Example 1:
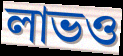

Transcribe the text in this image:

লাভও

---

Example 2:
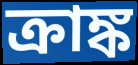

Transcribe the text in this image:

ক্রাঙ্ক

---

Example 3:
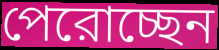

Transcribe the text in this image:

পেরোচ্ছেন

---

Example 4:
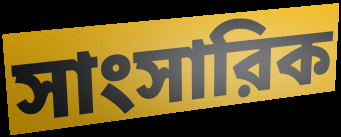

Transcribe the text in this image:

সাংসারিক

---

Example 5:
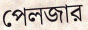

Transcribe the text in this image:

পেলজার